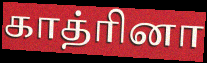
காத்ரினா